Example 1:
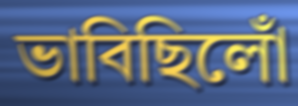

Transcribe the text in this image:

ভাবিছিলোঁ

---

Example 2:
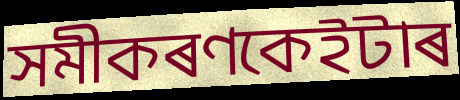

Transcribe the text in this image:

সমীকৰণকেইটাৰ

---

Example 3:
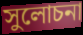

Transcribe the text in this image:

সুলোচনা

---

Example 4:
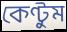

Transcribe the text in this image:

কেণ্টুম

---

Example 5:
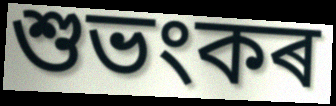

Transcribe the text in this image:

শুভংকৰ